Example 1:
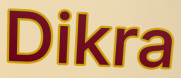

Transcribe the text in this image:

Dikra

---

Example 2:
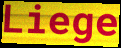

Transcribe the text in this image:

Liege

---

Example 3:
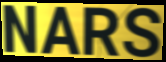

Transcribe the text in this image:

NARS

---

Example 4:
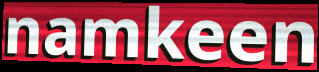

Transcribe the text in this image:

namkeen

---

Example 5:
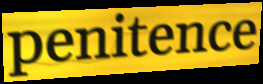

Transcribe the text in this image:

penitence